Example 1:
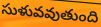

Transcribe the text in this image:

సుళువవుతుంది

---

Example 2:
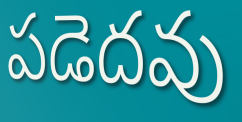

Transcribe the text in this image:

పడెదవు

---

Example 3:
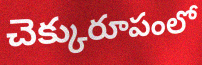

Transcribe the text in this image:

చెక్కురూపంలో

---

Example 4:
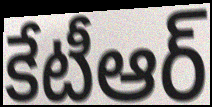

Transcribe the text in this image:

కేటీఆర్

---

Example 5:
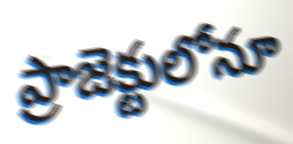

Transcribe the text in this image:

ప్రాజెక్టులోనూ